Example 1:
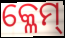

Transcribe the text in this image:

କ୍ଳେମ୍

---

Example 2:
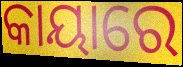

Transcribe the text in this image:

କାୟାରେ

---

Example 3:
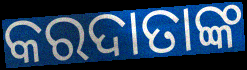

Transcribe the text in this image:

କରଦାତାଙ୍କ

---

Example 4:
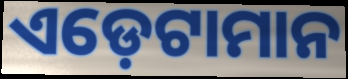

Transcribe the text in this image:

ଏଡ଼େଟାମାନ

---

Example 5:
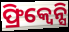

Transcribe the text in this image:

ଫ୍ରିକ୍ୱେନ୍ସି